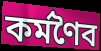
কর্মণৈব